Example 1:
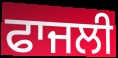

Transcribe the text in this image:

ਫਾਜਲੀ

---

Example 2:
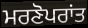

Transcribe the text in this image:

ਮਰਣੋਪਰਾਂਤ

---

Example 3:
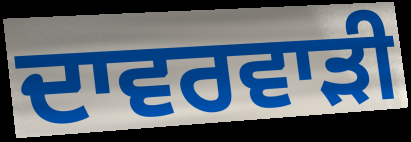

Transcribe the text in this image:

ਦਾਵਰਵਾੜੀ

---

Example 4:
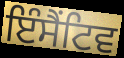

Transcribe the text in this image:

ਇੰਸੈਂਟਿਵ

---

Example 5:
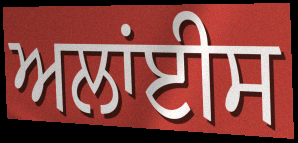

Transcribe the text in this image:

ਅਲਾਂਈਸ